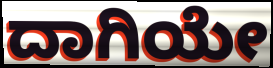
ದಾಗಿಯೇ